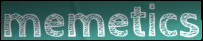
memetics